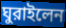
ঘুরাইলেন